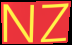
NZ